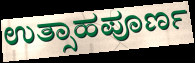
ಉತ್ಸಾಹಪೂರ್ಣ